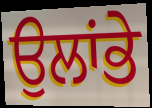
ਉਲਾਂਭੇ